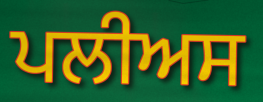
ਪਲੀਅਸ